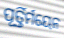
ପୂର୍ତ୍ତିର୍ମୟେନ